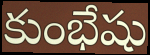
కుంభేషు